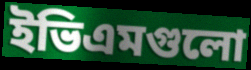
ইভিএমগুলো